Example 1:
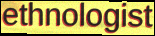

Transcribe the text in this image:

ethnologist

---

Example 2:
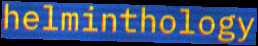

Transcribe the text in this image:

helminthology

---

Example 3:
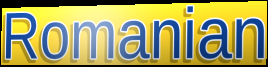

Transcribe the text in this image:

Romanian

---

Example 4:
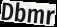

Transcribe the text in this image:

Dbmr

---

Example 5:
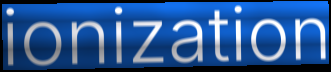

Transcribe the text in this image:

ionization